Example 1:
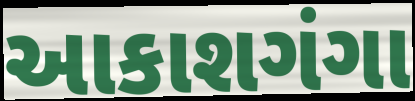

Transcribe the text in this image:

આકાશગંગા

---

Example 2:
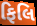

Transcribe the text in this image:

ફિલિ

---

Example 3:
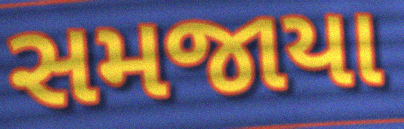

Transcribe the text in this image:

સમજાયા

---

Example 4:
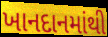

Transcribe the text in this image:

ખાનદાનમાંથી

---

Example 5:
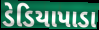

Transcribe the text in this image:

ડેડિયાપાડા